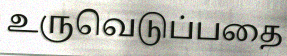
உருவெடுப்பதை